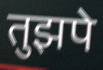
तुझपे